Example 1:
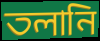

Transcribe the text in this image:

তলানি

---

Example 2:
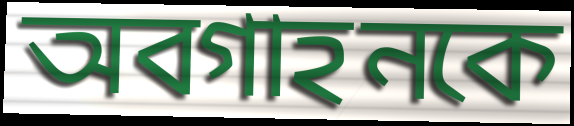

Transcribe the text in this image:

অবগাহনকে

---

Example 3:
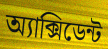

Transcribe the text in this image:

অ্যাক্সিডেন্ট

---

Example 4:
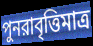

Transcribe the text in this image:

পুনরাবৃত্তিমাত্র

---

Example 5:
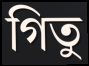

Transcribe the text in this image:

গিতু